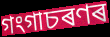
গংগাচৰণৰ